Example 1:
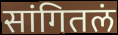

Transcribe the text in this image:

सांगितलं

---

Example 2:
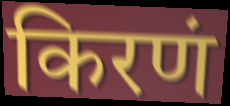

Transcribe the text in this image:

किरणं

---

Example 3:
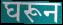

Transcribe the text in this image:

घरून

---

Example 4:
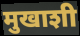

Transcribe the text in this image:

मुखाशी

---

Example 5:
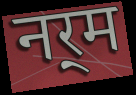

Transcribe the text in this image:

नर्म